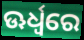
ଊର୍ଧ୍ୱରେ